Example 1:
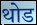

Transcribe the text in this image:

थोड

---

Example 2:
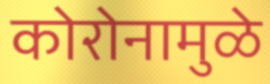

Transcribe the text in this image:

कोरोनामुळे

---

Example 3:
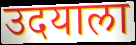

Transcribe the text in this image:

उदयाला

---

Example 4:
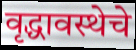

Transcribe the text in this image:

वृद्धावस्थेचे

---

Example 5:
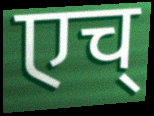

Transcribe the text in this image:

एच्